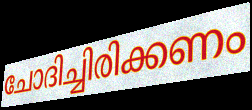
ചോദിച്ചിരിക്കണം